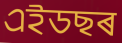
এইডছৰ